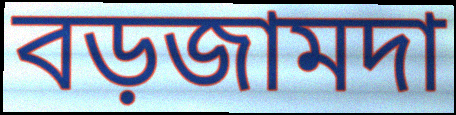
বড়জামদা